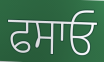
ਫਸਾਓ